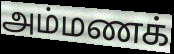
அம்மணக்